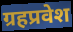
ग्रहप्रवेश